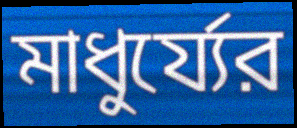
মাধুর্য্যের